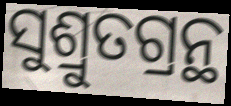
ସୁଶ୍ରୁତଗ୍ରନ୍ଥ